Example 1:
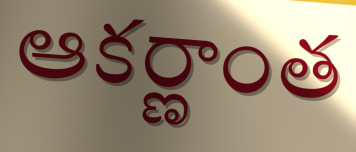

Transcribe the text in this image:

ఆకర్ణాంత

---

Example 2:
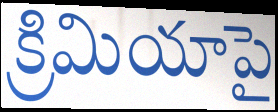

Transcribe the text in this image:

క్రిమియాపై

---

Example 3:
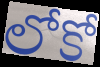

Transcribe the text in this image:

లోకో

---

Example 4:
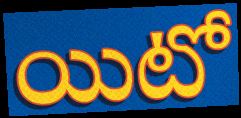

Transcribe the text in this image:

యిటో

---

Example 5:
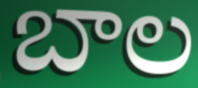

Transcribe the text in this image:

బాల